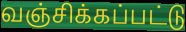
வஞ்சிக்கப்பட்டு